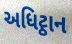
અધિટ્ઠાન